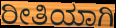
ರೀತಿಯಾಗಿ